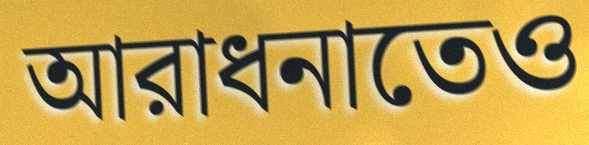
আরাধনাতেও